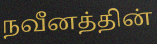
நவீனத்தின்